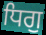
ਧਿਗੁ